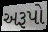
અરૂપો